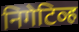
निगेटिव्ह